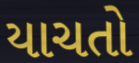
યાચતો